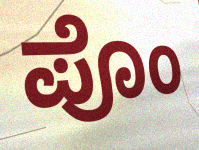
ಪೊಂ